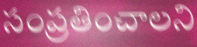
సంప్రతించాలని